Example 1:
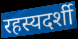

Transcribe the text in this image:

रहस्यदर्शी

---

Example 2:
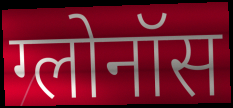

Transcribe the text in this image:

ग्लोनॉस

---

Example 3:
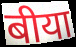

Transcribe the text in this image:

बीया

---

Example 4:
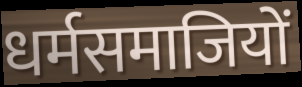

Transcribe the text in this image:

धर्मसमाजियों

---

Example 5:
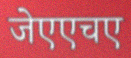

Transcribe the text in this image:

जेएएचए